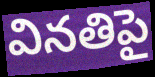
వినతిపై